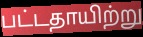
பட்டதாயிற்று